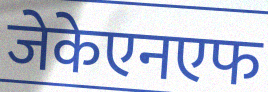
जेकेएनएफ